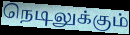
நெடிலுக்கும்